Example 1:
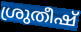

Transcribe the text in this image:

ശ്രുതീഷ്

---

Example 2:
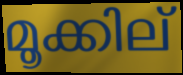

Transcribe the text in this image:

മൂക്കില്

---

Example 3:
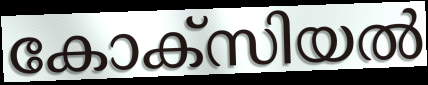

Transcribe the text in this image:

കോക്സിയൽ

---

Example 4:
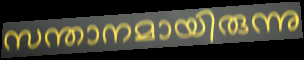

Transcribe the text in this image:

സന്താനമായിരുന്നു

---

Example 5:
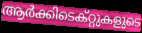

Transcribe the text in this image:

ആർക്കിടെക്റ്റുകളുടെ